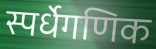
स्पर्धेगणिक